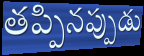
తప్పినప్పుడు